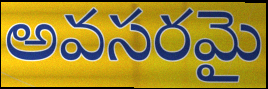
అవసరమై